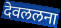
देवललना